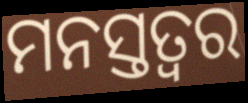
ମନସ୍ତତ୍ଵର